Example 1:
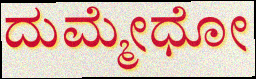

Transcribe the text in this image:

ದುಮ್ಮೇಧೋ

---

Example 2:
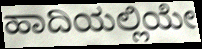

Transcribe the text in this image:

ಹಾದಿಯಲ್ಲಿಯೇ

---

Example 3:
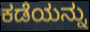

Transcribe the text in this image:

ಕಡೆಯನ್ನು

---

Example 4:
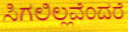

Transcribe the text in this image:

ಸಿಗಲಿಲ್ಲವೆಂದರೆ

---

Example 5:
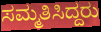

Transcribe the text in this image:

ಸಮ್ಮತಿಸಿದ್ದರು